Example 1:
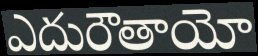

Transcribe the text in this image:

ఎదురౌతాయో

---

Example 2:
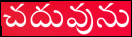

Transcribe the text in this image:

చదువును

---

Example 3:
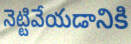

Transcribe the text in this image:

నెట్టివేయడానికి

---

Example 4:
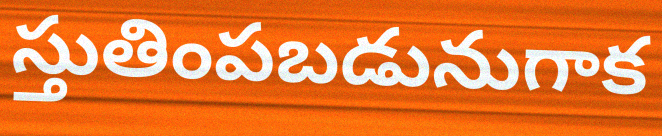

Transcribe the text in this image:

స్తుతింపబడునుగాక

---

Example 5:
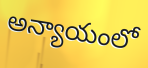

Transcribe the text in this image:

అన్యాయంలో